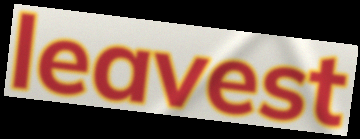
leavest